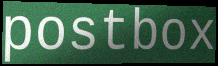
postbox